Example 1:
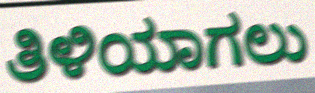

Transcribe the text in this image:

ತಿಳಿಯಾಗಲು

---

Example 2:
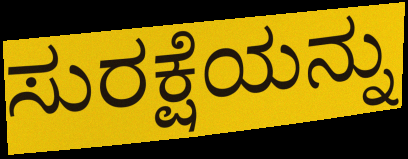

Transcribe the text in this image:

ಸುರಕ್ಷೆಯನ್ನು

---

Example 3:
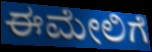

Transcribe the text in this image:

ಈಮೇಲಿಗೆ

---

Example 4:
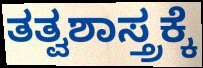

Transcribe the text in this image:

ತತ್ವಶಾಸ್ತ್ರಕ್ಕೆ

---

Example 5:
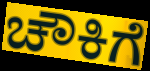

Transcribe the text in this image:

ಚೌಕಿಗೆ